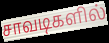
சாவடிகளில்